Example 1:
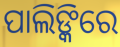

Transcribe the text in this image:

ପାଲିଙ୍କିରେ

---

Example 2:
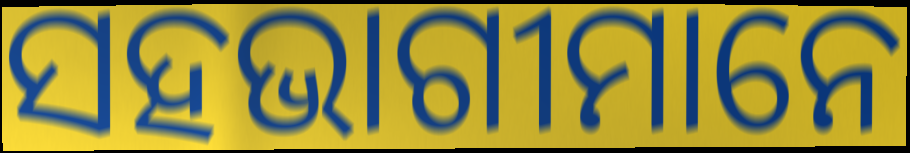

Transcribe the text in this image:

ସହଭାଗୀମାନେ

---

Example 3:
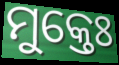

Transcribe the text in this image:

ମୁକ୍ତେଃ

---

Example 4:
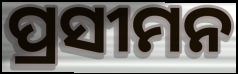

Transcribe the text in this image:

ପ୍ରସୀମନ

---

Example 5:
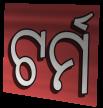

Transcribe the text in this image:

ଟର୍ମ